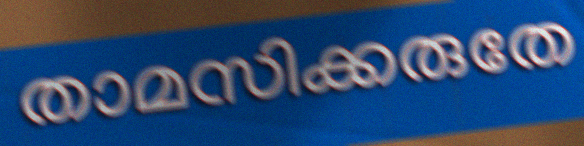
താമസിക്കരുതേ